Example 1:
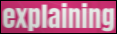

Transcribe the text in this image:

explaining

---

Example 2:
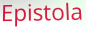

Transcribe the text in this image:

Epistola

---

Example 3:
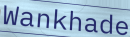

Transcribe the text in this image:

Wankhade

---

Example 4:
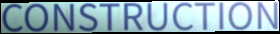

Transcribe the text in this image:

CONSTRUCTION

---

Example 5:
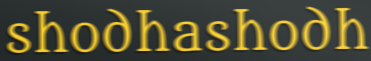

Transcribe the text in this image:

shodhashodh